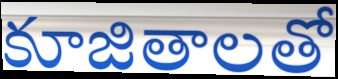
కూజితాలతో